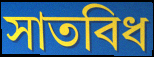
সাতবিধ